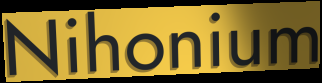
Nihonium